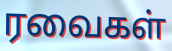
ரவைகள்